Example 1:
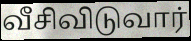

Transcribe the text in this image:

வீசிவிடுவார்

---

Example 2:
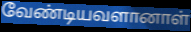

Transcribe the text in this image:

வேண்டியவளானாள்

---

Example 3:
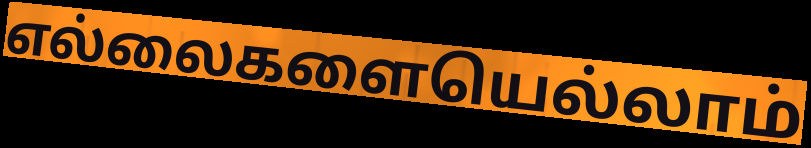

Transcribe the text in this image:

எல்லைகளையெல்லாம்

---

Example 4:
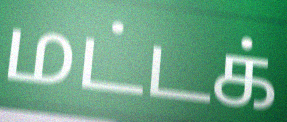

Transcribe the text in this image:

மட்டக்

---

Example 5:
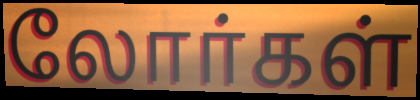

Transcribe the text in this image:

லோர்கள்